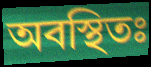
অবস্থিতঃ